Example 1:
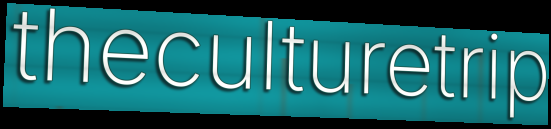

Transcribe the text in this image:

theculturetrip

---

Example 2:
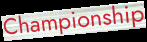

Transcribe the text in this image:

Championship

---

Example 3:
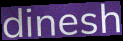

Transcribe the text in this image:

dinesh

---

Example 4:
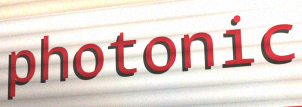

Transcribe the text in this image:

photonic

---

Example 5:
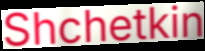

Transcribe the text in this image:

Shchetkin